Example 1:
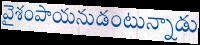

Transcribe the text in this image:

వైశంపాయనుడంటున్నాడు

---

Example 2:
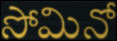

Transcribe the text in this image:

సోమినో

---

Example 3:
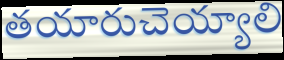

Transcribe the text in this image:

తయారుచెయ్యాలి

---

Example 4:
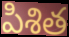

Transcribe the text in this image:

పిశిత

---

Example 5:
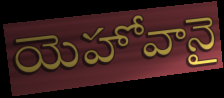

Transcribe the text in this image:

యెహోవానై